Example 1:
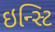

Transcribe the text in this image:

ઇન્સ્ટિ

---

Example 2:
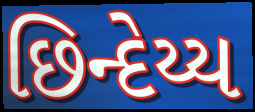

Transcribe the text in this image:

છિન્દેય્ય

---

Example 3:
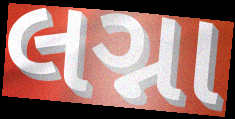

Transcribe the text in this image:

લગ્ના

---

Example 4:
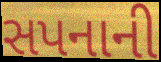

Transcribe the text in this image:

સપનાની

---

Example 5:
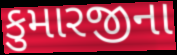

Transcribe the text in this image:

કુમારજીના